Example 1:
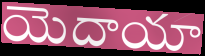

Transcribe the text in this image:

యెదాయా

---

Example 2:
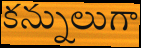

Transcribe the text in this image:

కన్నులుగా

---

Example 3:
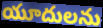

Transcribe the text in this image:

యూదులను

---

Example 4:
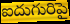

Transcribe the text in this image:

ఐదుగురిపై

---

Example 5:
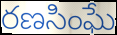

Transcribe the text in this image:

రణసింఘే